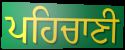
ਪਹਿਚਾਣੀ